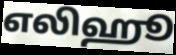
எலிஹூ